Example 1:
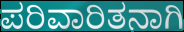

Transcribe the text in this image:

ಪರಿವಾರಿತನಾಗಿ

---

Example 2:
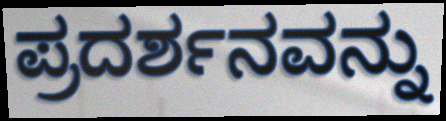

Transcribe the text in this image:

ಪ್ರದರ್ಶನವನ್ನು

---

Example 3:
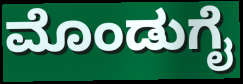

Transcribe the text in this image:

ಮೊಂಡುಗೈ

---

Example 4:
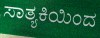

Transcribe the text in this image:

ಸಾತ್ಯಕಿಯಿಂದ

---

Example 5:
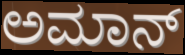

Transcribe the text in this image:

ಅಮಾನ್